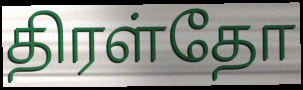
திரள்தோ